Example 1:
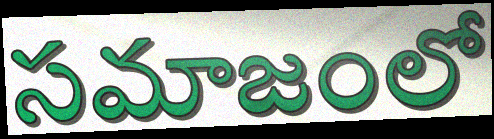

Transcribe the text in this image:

సమాజంలో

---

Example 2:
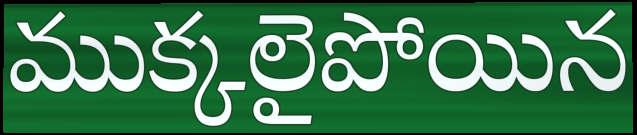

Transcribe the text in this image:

ముక్కలైపోయిన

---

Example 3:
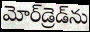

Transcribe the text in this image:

మోర్‌డ్రెడ్‌ను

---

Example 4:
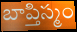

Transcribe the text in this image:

బాప్తిస్మం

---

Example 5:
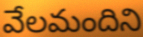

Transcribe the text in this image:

వేలమందిని